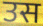
उस